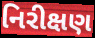
નિરીક્ષણ